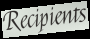
Recipients